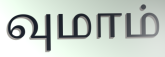
வுமாம்